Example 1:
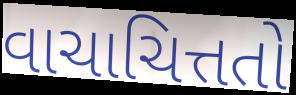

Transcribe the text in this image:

વાચાચિત્તતો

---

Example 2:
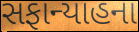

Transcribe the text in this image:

સફાન્યાહના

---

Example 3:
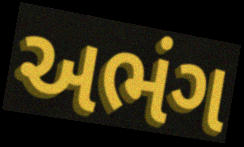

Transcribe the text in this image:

અભંગ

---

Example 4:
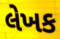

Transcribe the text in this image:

લેખક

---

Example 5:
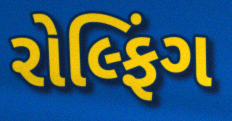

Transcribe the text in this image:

રોલ્ફિંગ